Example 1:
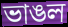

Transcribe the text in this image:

ভাঙল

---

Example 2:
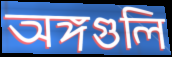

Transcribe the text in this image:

অঙ্গগুলি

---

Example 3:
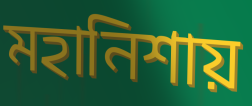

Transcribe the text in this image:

মহানিশায়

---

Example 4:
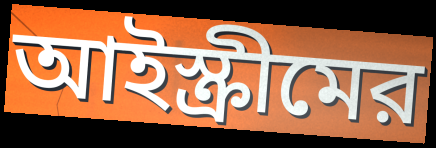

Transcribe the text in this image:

আইস্ক্রীমের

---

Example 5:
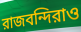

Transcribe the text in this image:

রাজবন্দিরাও